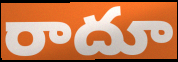
రాదూ